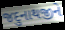
જદુનાથજીને